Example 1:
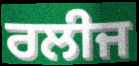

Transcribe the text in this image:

ਰਲੀਜ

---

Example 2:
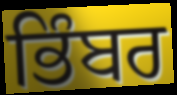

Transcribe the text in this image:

ਭਿੰਬਰ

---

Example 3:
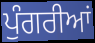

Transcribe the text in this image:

ਪੁੰਗਰੀਆਂ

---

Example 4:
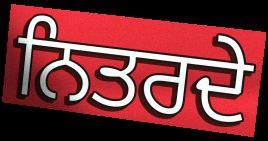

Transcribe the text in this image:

ਨਿਤਰਦੇ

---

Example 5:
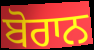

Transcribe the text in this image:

ਬੋਰਾਨ